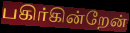
பகிர்கின்றேன்